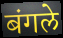
बंगले